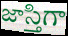
జాస్తిగా